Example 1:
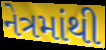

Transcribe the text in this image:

નેત્રમાંથી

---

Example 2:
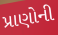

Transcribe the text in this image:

પ્રાણોની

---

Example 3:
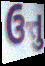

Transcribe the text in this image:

ઉત્તુ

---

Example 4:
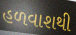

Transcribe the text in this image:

હળવાશથી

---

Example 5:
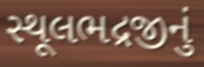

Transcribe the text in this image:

સ્થૂલભદ્રજીનું